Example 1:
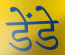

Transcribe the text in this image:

डेंडे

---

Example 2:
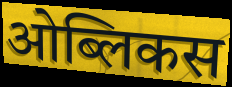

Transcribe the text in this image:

ओब्लिकस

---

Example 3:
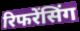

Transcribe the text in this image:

रिफरेंसिंग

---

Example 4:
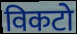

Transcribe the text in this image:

विकटो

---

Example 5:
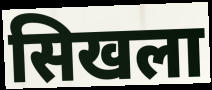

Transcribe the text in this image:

सिखला